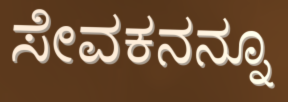
ಸೇವಕನನ್ನೂ